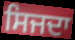
ਸਿਜਦਾ